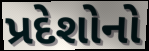
પ્રદેશોનો